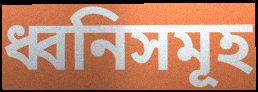
ধ্বনিসমূহ